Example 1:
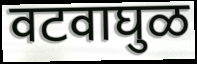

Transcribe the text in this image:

वटवाघुळ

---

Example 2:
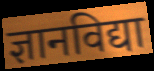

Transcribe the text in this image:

ज्ञानविद्या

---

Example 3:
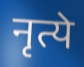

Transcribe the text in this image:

नृत्ये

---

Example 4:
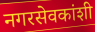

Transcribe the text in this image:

नगरसेवकांशी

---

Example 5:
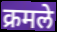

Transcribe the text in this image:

क्रमले